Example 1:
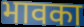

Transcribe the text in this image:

भावका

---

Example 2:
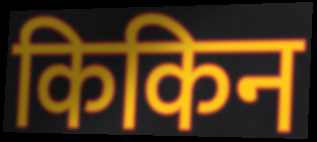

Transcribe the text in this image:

किकिन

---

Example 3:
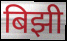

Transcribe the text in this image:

बिझी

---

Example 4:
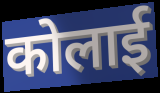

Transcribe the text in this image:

कोलाई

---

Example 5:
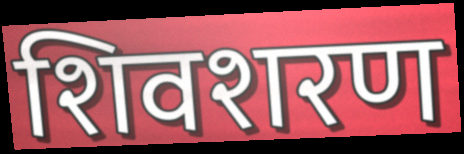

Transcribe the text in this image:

शिवशरण